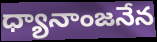
ధ్యానాంజనేన